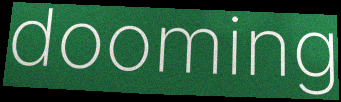
dooming